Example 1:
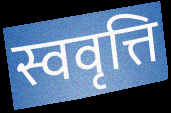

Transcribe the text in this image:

स्ववृत्ति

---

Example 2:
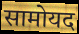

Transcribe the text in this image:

सामोयद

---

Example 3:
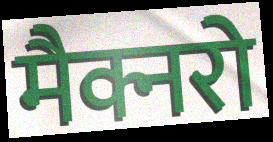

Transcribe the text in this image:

मैक्नरो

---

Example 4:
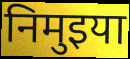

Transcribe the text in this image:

निमुइया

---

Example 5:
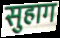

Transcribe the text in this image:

सुहाग